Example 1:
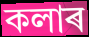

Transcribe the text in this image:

কলাৰ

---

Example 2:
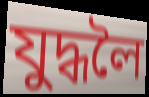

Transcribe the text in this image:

যুদ্ধলৈ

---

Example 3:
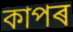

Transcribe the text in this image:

কাপৰ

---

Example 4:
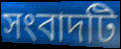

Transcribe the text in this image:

সংবাদটি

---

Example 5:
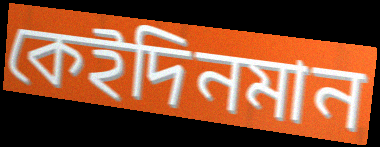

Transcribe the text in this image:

কেইদিনমান